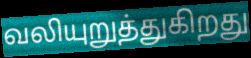
வலியுறுத்துகிறது